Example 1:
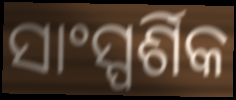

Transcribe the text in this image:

ସାଂସ୍ପର୍ଶିକ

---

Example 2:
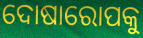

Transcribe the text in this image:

ଦୋଷାରୋପକୁ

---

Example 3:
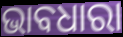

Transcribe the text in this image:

ଭାବଧାରା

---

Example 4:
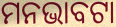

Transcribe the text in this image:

ମନଭାବଟା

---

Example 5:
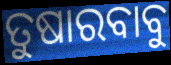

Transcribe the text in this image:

ତୁଷାରବାବୁ